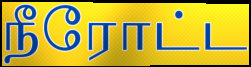
நீரோட்ட